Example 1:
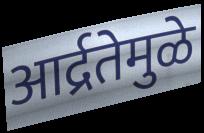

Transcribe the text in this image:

आर्द्रतेमुळे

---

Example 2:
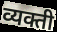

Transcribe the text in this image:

व्यक्ती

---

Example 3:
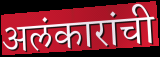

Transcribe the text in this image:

अलंकारांची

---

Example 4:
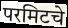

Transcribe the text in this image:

परमिटचे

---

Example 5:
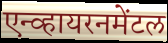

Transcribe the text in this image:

एन्व्हायरनमेंटल